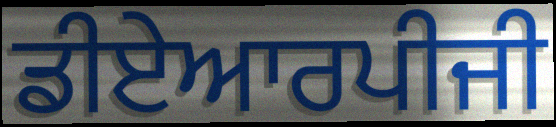
ਡੀਏਆਰਪੀਜੀ